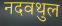
नदवथुल